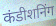
कंडीशनिंग